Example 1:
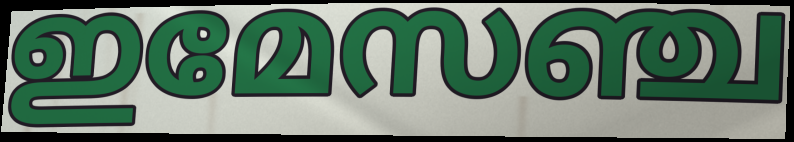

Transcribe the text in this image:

ഇമേസഞ്ച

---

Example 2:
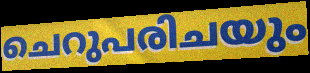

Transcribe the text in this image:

ചെറുപരിചയും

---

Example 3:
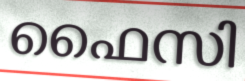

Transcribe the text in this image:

ഫൈസി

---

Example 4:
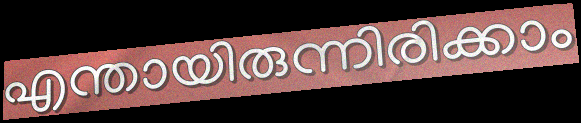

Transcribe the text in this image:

എന്തായിരുന്നിരിക്കാം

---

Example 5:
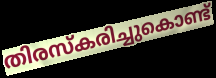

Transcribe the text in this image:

തിരസ്കരിച്ചുകൊണ്ട്